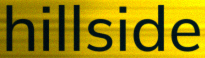
hillside